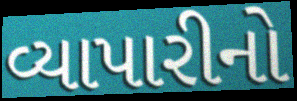
વ્યાપારીનો